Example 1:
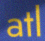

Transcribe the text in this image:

atl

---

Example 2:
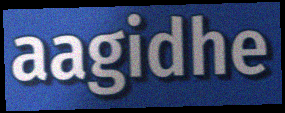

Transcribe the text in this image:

aagidhe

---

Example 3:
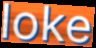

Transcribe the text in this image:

loke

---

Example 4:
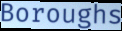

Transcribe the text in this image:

Boroughs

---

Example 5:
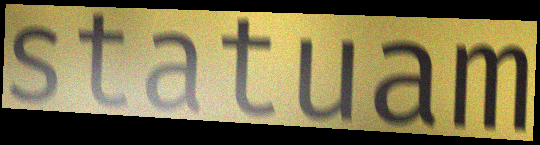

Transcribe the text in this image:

statuam